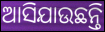
ଆସିଯାଉଛନ୍ତି